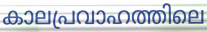
കാലപ്രവാഹത്തിലെ